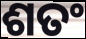
ଶତଂ